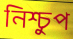
নিশ্চুপ